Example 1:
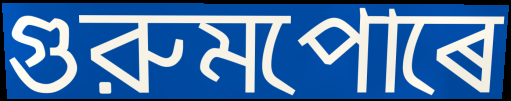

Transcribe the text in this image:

গুৰুমপোৰে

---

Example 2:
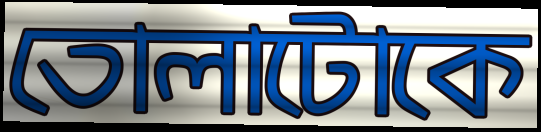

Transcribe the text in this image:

তোলাটোকে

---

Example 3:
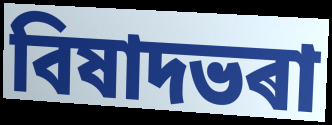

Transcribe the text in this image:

বিষাদভৰা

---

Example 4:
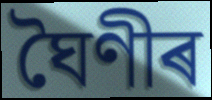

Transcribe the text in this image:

ঘৈণীৰ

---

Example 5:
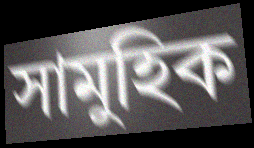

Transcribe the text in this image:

সামুহিক